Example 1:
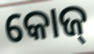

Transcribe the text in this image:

କୋଜ୍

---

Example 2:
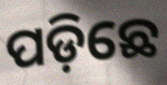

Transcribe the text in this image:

ପଡ଼ିଛେ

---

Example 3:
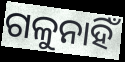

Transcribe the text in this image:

ଗଳୁନାହିଁ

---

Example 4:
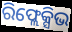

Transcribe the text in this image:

ରିଫ୍ଲେକ୍ସିଭ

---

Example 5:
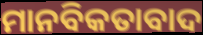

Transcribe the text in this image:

ମାନବିକତାବାଦ